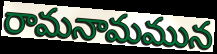
రామనామమున